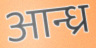
आन्ध्र